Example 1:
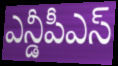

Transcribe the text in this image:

ఎన్డీపీఎస్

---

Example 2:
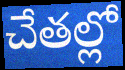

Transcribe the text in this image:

చేతల్లో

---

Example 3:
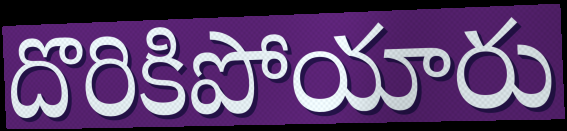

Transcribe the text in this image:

దొరికిపోయారు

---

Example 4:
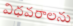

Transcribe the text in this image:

విధవరాలను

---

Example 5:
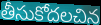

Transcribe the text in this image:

తీసుకోదలచిన